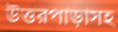
উত্তরপাড়াসহ